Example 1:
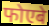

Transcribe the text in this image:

फोएबे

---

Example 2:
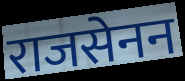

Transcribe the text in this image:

राजसेनन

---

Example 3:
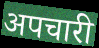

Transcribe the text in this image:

अपचारी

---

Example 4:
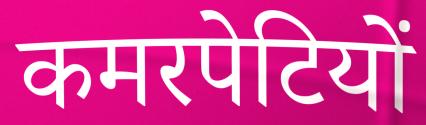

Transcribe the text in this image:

कमरपेटियों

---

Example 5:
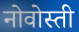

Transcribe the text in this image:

नोवोस्ती